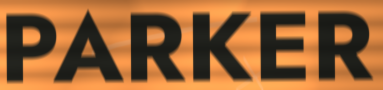
PARKER